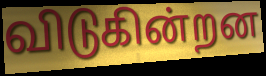
விடுகின்றன